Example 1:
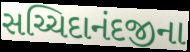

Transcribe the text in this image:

સચ્ચિદાનંદજીના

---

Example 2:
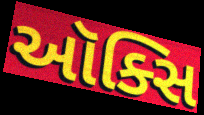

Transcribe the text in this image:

ઑક્સિ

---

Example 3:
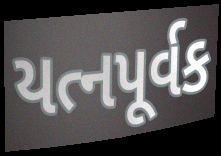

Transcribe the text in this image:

યત્નપૂર્વક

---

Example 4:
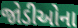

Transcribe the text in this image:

જોડીઓના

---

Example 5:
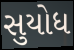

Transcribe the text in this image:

સુયોધ